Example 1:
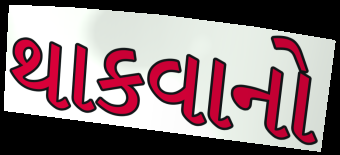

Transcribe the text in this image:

થાકવાનો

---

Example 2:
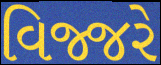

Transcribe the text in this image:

વિજ્જરે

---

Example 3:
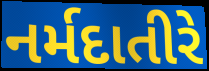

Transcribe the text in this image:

નર્મદાતીરે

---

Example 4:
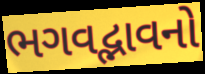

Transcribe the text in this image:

ભગવદ્ભાવનો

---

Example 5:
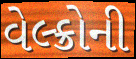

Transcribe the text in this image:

વેલ્ક્રોની